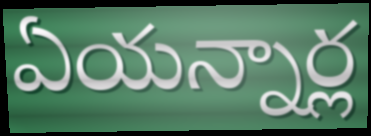
ఏయన్నార్ల